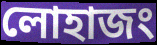
লোহাজং